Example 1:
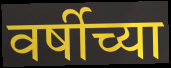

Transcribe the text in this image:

वर्षीच्या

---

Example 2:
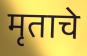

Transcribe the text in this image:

मृताचे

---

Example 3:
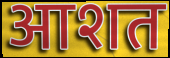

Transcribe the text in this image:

आशत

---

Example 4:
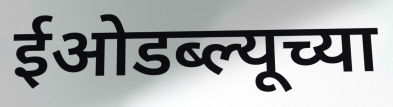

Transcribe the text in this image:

ईओडब्ल्यूच्या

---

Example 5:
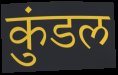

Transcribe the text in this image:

कुंडल